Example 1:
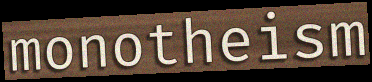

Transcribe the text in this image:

monotheism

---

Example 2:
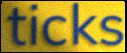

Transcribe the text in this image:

ticks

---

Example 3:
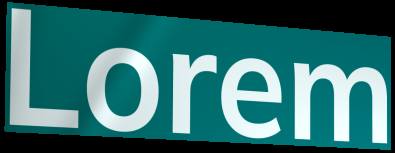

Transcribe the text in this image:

Lorem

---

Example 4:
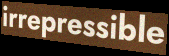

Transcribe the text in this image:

irrepressible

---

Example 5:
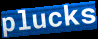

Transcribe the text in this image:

plucks